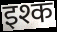
इश्क